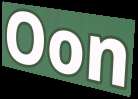
Oon